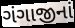
ગંગાજીનાં